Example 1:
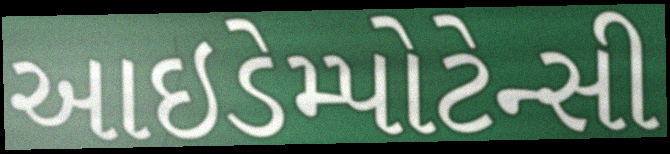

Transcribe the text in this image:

આઇડેમ્પોટેન્સી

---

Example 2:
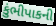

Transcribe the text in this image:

કુંભીપાકની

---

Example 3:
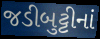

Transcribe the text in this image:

જડીબુટ્ટીનાં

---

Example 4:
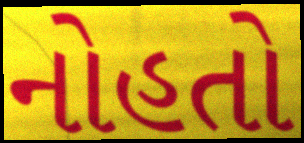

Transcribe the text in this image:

નોહતો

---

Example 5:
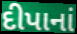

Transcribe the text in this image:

દીપાનાં